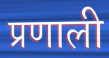
प्रणाली